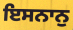
ਇਸਨਾਨੁ